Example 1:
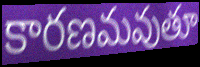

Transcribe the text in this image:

కారణమవుతూ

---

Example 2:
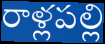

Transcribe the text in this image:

రాళ్లపల్లి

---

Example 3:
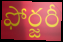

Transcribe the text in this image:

ఫోర్జరీ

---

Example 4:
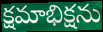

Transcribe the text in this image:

క్షమాభిక్షను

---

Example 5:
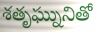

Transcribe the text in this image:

శతృఘ్నునితో